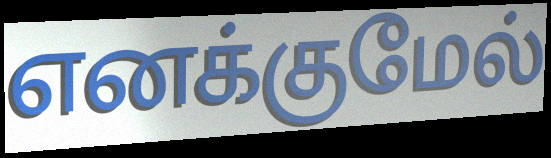
எனக்குமேல்